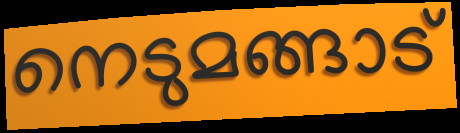
നെടുമങ്ങാട്